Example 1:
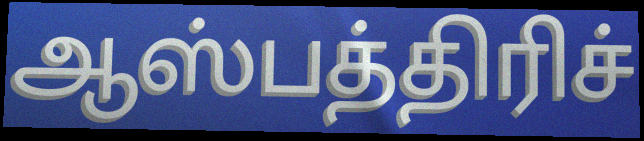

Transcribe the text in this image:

ஆஸ்பத்திரிச்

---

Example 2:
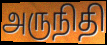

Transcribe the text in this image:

அருநிதி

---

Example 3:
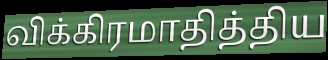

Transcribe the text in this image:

விக்கிரமாதித்திய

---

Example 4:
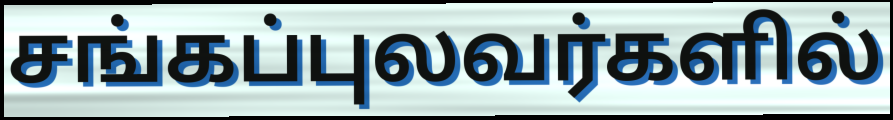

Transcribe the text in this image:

சங்கப்புலவர்களில்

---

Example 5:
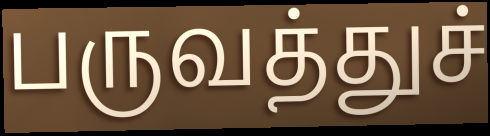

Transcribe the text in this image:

பருவத்துச்